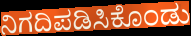
ನಿಗದಿಪಡಿಸಿಕೊಂಡು